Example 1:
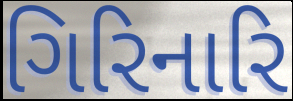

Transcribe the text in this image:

ગિરિનારિ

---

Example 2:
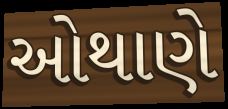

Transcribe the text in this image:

ઓથાણે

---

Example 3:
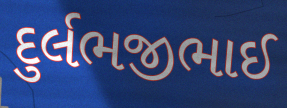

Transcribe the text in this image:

દુર્લભજીભાઈ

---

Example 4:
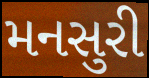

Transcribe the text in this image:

મનસુરી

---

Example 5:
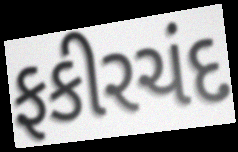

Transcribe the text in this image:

ફકીરચંદ